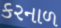
કરનાળ